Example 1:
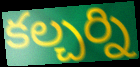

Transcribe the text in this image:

కల్చర్ని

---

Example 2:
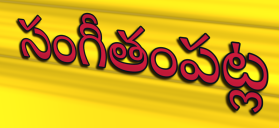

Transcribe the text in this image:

సంగీతంపట్ల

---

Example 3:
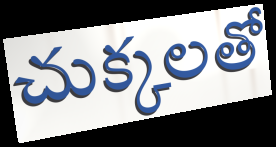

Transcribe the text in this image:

చుక్కలతో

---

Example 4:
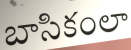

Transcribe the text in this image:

బాసికంలా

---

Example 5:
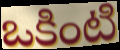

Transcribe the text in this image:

ఒకింటి